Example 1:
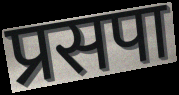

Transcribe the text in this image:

प्रसपा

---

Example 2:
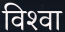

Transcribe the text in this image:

विश्‍वा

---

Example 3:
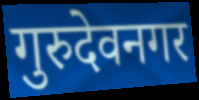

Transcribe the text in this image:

गुरुदेवनगर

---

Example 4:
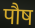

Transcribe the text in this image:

पौष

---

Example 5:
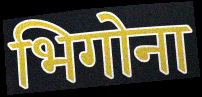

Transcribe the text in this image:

भिगोना